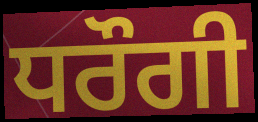
ਧਰੌਗੀ